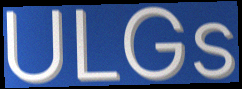
ULGs